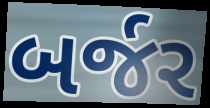
બર્જર